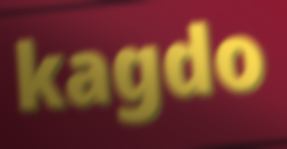
kagdo